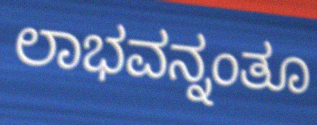
ಲಾಭವನ್ನಂತೂ